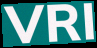
VRI